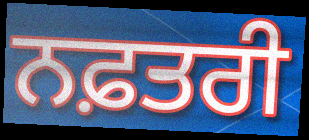
ਨਫ਼ਤਰੀ